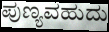
ಪುಣ್ಯವಹುದು